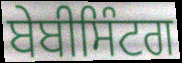
ਬੇਬੀਸਿੰਟਗ